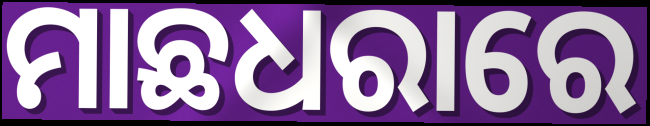
ମାଛଧରାରେ